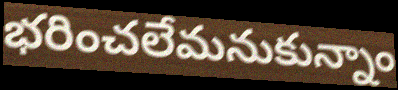
భరించలేమనుకున్నాం